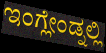
ಇಂಗ್ಲೇಂಡ್ನಲ್ಲಿ